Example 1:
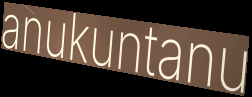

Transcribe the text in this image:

anukuntanu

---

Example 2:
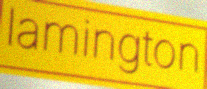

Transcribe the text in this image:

lamington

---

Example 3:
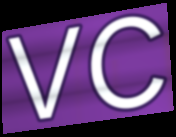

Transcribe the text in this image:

vc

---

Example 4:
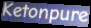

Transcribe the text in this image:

Ketonpure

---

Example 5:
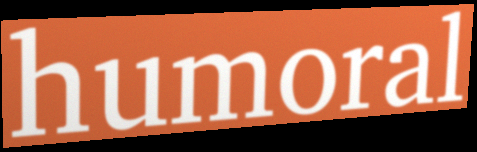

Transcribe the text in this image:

humoral